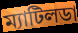
ম্যাটিলডা